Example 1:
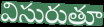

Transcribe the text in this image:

విసురుతూ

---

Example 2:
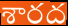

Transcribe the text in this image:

శారద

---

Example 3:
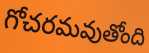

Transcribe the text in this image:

గోచరమవుతోంది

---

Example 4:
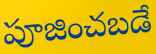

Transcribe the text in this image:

పూజించబడే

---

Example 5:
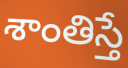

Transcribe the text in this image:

శాంతిస్తే